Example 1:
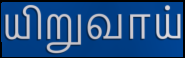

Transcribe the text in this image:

யிறுவாய்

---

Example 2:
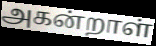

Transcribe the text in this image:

அகன்றாள்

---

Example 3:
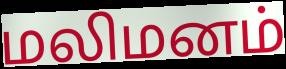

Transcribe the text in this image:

மலிமனம்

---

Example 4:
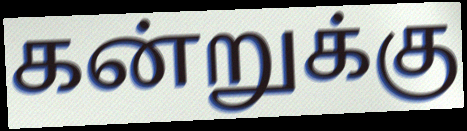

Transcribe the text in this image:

கன்றுக்கு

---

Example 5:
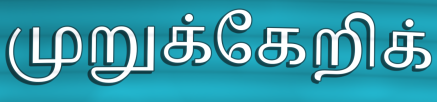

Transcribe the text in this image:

முறுக்கேறிக்